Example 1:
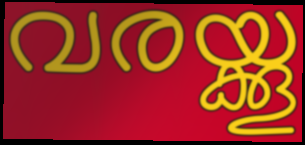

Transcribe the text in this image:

വരയ്ക്കൂ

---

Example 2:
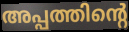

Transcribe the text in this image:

അപ്പത്തിന്റെ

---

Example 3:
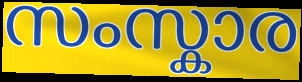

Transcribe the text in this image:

സംസ്കാര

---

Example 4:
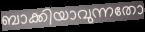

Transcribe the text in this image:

ബാക്കിയാവുന്നതോ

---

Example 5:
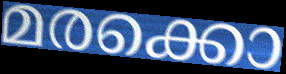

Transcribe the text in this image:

മരക്കൊ